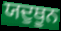
ਯਦੁਥੂਨ